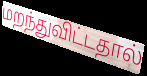
மறந்துவிட்டதால்